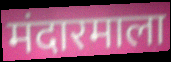
मंदारमाला